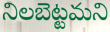
నిలబెట్టమని